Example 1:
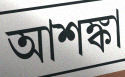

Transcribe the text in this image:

আশঙ্কা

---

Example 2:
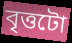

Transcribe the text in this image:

বৃত্তটো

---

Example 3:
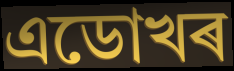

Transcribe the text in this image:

এডোখৰ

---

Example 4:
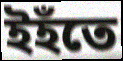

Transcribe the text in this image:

ইহঁতে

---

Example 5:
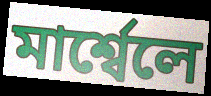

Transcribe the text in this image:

মাৰ্শ্বেলে